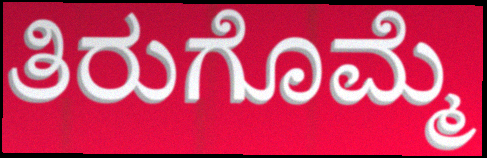
ತಿರುಗೊಮ್ಮೆ